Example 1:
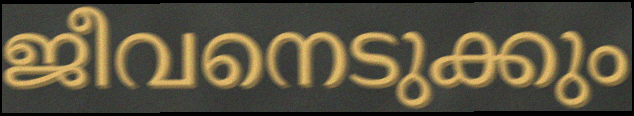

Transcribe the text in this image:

ജീവനെടുക്കും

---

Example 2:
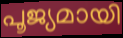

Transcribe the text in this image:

പൂജ്യമായി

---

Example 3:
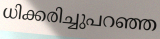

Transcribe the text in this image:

ധിക്കരിച്ചുപറഞ്ഞ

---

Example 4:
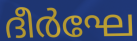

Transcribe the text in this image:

ദീർഘേ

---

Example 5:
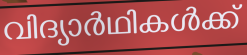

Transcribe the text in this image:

വിദ്യാർഥികൾക്ക്